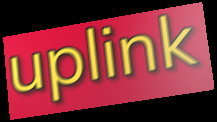
uplink